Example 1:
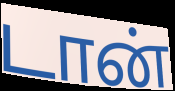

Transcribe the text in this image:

டான்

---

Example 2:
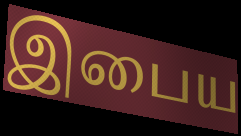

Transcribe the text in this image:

இபைய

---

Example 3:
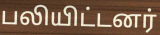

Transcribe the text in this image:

பலியிட்டனர்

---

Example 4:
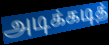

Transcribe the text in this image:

அடிக்கடித்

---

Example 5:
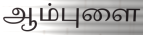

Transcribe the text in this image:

ஆம்புளை